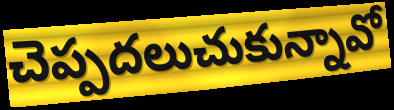
చెప్పదలుచుకున్నావో